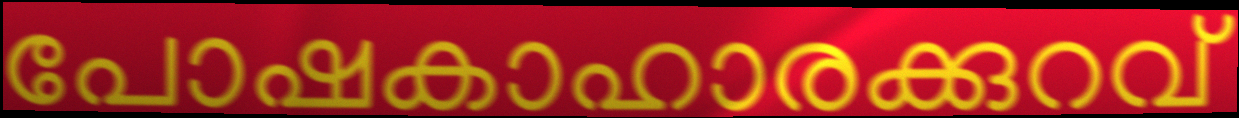
പോഷകാഹാരക്കുറവ്